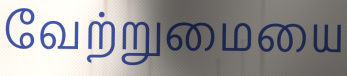
வேற்றுமையை